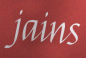
jains